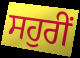
ਸਹੁਰੀਂ